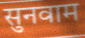
सुनवाम